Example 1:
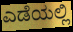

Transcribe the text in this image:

ಎಡೆಯಲ್ಲಿ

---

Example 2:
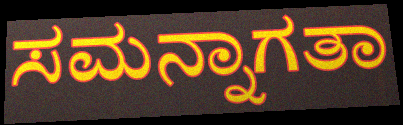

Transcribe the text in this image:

ಸಮನ್ನಾಗತಾ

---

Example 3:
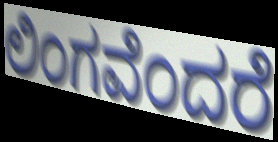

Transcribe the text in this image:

ಲಿಂಗವೆಂದರೆ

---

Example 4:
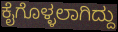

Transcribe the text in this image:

ಕೈಗೊಳ್ಳಲಾಗಿದ್ದು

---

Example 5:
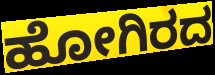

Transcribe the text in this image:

ಹೋಗಿರದ